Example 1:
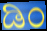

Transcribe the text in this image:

ಡಿಂ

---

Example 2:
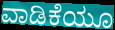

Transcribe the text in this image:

ವಾಡಿಕೆಯೂ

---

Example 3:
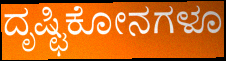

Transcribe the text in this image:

ದೃಷ್ಟಿಕೋನಗಳೂ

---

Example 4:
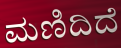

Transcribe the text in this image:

ಮಣಿದಿದೆ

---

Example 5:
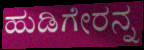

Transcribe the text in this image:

ಹುಡಿಗೇರನ್ನ